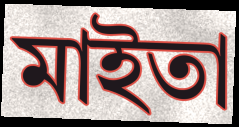
মাইতা